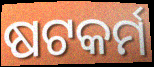
ଷଟକର୍ମ